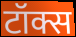
टॉक्स